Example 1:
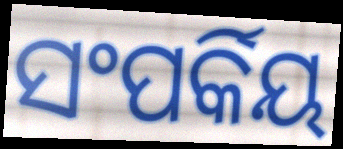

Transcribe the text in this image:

ସଂପର୍କିୟ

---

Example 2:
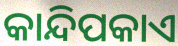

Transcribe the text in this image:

କାନ୍ଦିପକାଏ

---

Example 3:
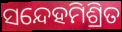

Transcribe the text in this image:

ସନ୍ଦେହମିଶ୍ରିତ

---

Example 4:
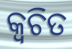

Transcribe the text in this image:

କ୍ବଚିତ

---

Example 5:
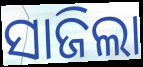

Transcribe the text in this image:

ସାଜିଲା